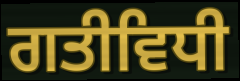
ਗਤੀਵਿਧੀ